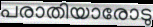
പരാതിയാരോടു